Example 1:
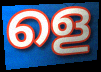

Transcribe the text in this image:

ളെ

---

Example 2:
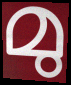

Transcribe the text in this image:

മു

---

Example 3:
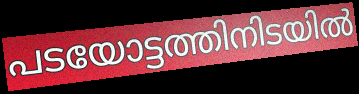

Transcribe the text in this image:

പടയോട്ടത്തിനിടയിൽ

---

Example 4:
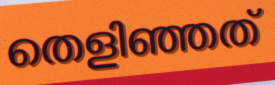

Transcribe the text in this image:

തെളിഞ്ഞത്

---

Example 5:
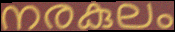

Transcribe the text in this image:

നരകുലം